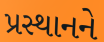
પ્રસ્થાનને